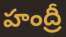
హంద్రీ